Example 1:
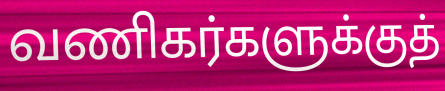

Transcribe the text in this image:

வணிகர்களுக்குத்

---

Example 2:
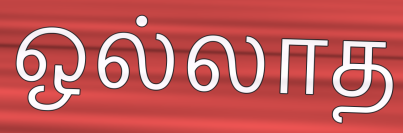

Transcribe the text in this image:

ஒல்லாத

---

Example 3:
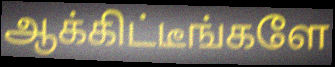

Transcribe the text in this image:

ஆக்கிட்டீங்களே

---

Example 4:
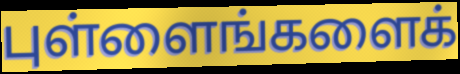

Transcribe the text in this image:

புள்ளைங்களைக்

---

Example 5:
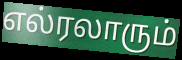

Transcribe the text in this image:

எல்ரலாரும்